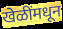
खेळींमधून